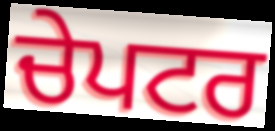
ਚੇਪਟਰ